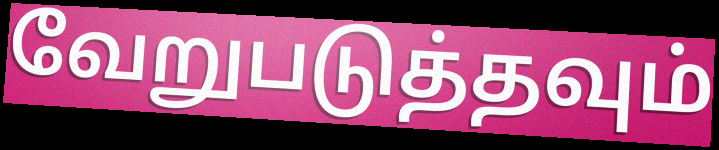
வேறுபடுத்தவும்